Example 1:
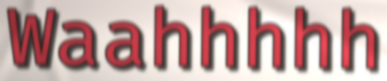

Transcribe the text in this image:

Waahhhhh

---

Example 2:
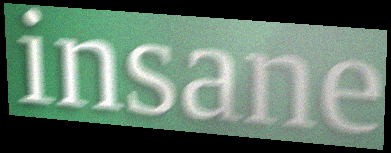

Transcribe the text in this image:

insane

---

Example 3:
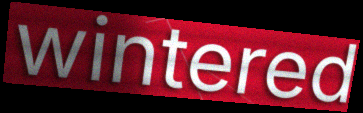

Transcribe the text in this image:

wintered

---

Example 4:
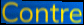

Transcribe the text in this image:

Contre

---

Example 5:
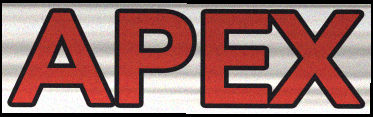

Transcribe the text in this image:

APEX